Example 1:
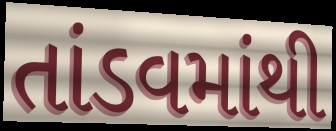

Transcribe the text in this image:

તાંડવમાંથી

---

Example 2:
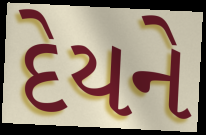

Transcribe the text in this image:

દેયને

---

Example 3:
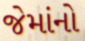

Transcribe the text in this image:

જેમાંનો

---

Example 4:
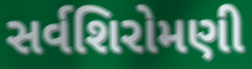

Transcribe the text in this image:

સર્વશિરોમણી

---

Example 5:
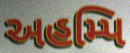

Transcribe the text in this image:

અહમ્પિ